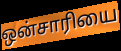
ஒன்சாரியை